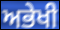
ਅਭੇਖੀ